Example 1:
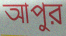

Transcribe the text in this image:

আপুর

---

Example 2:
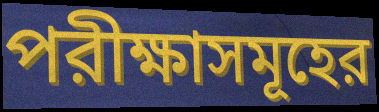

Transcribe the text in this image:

পরীক্ষাসমূহের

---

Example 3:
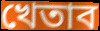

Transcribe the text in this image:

খেতাব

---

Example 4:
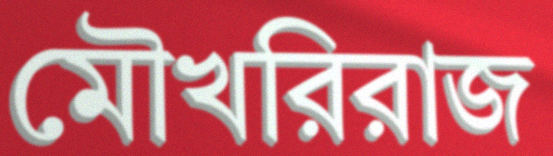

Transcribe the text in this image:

মৌখরিরাজ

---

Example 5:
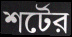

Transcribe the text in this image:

শর্টের